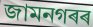
জামনগৰৰ